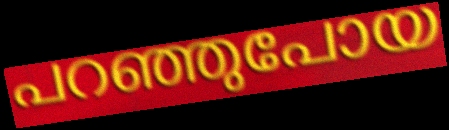
പറഞ്ഞുപോയ